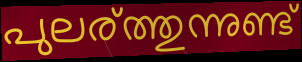
പുലര്ത്തുന്നുണ്ട്